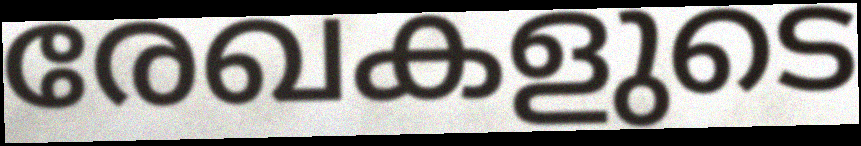
രേഖകളുടെ